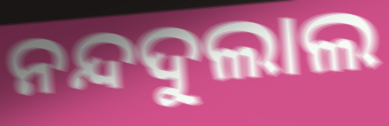
ନନ୍ଦଦୁଲାଲ